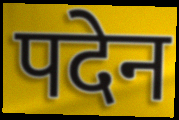
पदेन